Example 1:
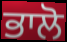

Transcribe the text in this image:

ਭਾਲੋ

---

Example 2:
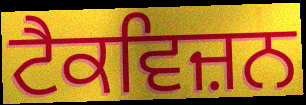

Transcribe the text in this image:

ਟੈਕਵਿਜ਼ਨ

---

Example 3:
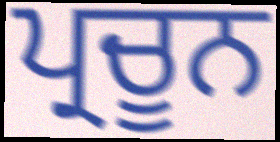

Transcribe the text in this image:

ਪ੍ਰਚੂਨ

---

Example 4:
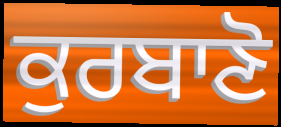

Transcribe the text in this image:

ਕੁਰਬਾਣੋ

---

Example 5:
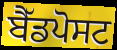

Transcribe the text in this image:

ਬੈੱਡਪੋਸਟ